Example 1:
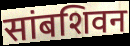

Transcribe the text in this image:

सांबशिवन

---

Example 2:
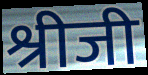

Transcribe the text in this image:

श्रीजी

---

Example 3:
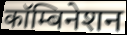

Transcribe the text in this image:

कॉम्बिनेशन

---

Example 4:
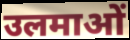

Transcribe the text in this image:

उलमाओं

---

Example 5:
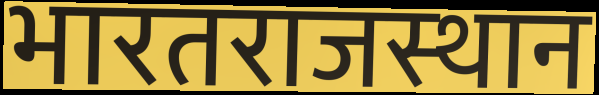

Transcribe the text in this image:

भारतराजस्थान